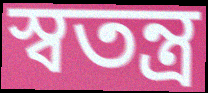
স্বতন্ত্র